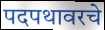
पदपथावरचे